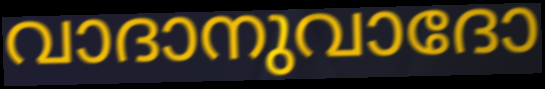
വാദാനുവാദോ